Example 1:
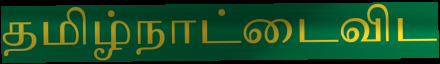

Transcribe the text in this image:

தமிழ்நாட்டைவிட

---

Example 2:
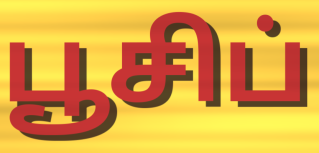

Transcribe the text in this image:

பூசிப்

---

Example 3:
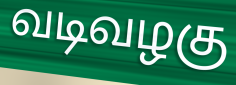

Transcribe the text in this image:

வடிவழகு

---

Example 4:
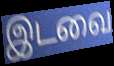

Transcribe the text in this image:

இடவை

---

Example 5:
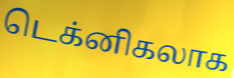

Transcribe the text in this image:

டெக்னிகலாக